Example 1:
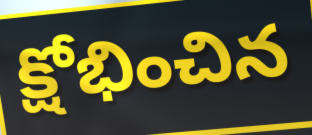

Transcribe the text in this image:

క్షోభించిన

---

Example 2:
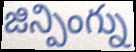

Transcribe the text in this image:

జిన్పింగ్ను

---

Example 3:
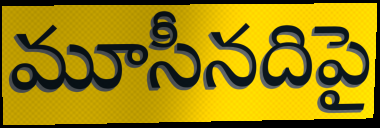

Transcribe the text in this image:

మూసీనదిపై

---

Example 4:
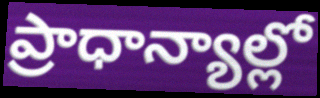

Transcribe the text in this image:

ప్రాధాన్యాల్లో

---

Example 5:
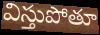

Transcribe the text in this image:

విస్తుపోతూ